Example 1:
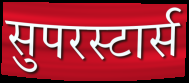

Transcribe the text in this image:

सुपरस्टार्स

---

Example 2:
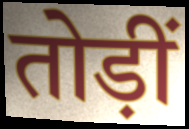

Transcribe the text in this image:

तोड़ीं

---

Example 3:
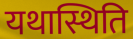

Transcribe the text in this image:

यथास्थिति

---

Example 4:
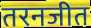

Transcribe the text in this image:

तरनजीत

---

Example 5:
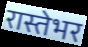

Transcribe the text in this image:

रास्तेभर